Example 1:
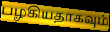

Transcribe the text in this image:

பழகியதாகவும்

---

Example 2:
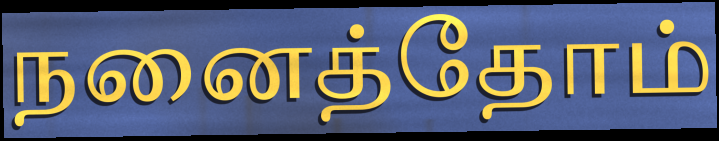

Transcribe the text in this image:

நனைத்தோம்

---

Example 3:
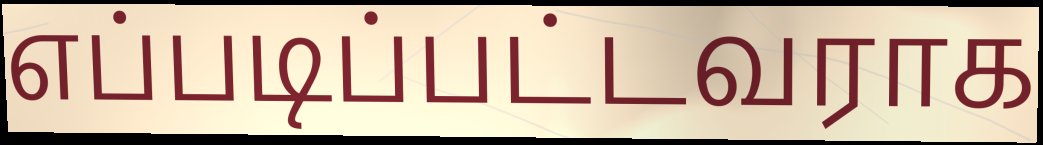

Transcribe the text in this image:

எப்படிப்பட்டவராக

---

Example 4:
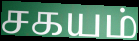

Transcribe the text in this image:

சகயம்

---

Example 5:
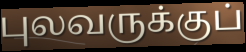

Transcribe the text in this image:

புலவருக்குப்